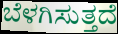
ಬೆಳಗಿಸುತ್ತದೆ